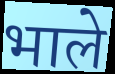
भाले